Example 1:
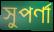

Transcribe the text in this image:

সুপর্ণা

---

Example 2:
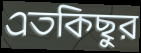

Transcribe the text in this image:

এতকিছুর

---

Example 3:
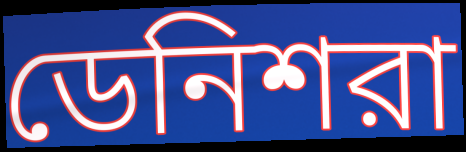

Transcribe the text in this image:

ডেনিশরা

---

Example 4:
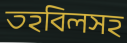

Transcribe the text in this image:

তহবিলসহ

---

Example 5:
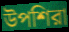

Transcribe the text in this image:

উপশিরা